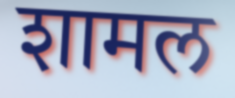
शामल